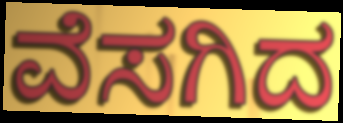
ವೆಸಗಿದ